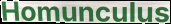
Homunculus